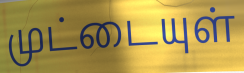
முட்டையுள்